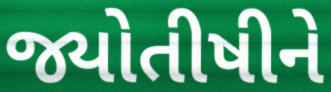
જ્યોતીષીને